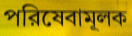
পরিষেবামূলক